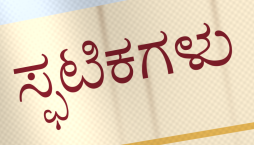
ಸ್ಫಟಿಕಗಳು